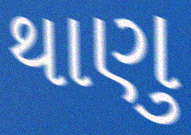
થાણુ